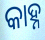
କାହ୍ନ